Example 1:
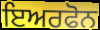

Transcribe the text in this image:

ਇਅਰਫੋਨ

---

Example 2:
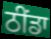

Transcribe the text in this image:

ਠੀਂਡਾ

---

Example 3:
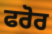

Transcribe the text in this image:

ਫਰੋਰ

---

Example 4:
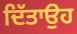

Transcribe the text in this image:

ਦਿੱਤਾਉਹ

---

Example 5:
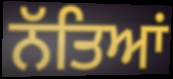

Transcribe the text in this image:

ਨੱਤਿਆਂ